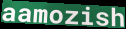
aamozish